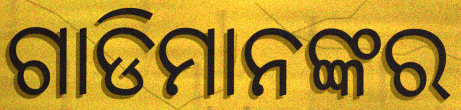
ଗାଡିମାନଙ୍କର